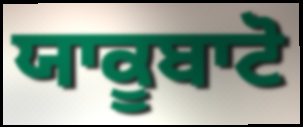
ਯਾਕੂਬਾਟੋ